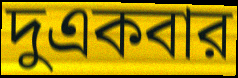
দুএকবার